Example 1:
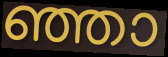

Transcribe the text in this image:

ഞ്ഞാ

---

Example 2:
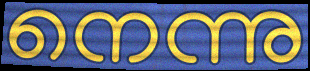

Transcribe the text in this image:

നെന്നു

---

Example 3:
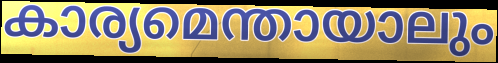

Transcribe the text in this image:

കാര്യമെന്തായാലും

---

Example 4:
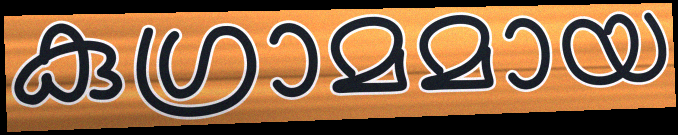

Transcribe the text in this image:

കുഗ്രാമമായ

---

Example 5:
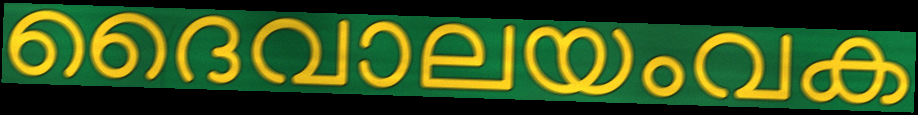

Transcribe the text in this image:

ദൈവാലയംവക